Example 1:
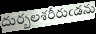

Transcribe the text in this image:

దుర్బలశరీరుఁడను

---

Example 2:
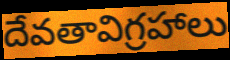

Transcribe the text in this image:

దేవతావిగ్రహాలు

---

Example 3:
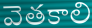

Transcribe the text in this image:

వెతకాలి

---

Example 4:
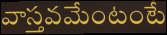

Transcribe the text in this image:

వాస్తవమేంటంటే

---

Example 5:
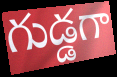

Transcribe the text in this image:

గుడ్డగా